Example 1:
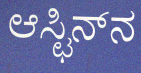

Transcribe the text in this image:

ಆಸ್ಟಿನ್‌ನ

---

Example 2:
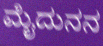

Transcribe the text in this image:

ಮೈದುನನ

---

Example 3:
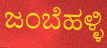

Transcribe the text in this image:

ಜಂಬೆಹಳ್ಳಿ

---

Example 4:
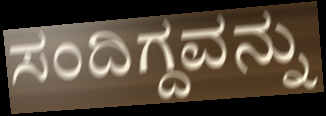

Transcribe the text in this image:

ಸಂದಿಗ್ದವನ್ನು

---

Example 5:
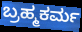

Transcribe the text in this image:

ಬ್ರಹ್ಮಕರ್ಮ